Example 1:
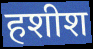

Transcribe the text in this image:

हशीश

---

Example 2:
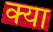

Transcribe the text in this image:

क्‍या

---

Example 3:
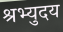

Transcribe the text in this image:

श्रभ्युदय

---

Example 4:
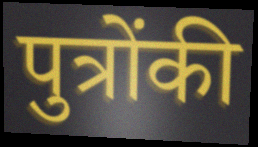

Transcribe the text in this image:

पुत्रोंकी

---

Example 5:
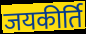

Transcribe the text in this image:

जयकीर्ति